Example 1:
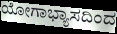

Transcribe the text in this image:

ಯೋಗಾಭ್ಯಾಸದಿಂದ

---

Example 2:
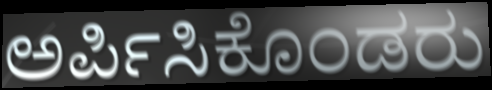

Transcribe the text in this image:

ಅರ್ಪಿಸಿಕೊಂಡರು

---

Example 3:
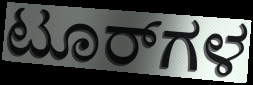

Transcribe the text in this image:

ಟೂರ್‌ಗಳ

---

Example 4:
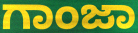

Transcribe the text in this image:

ಗಾಂಜಾ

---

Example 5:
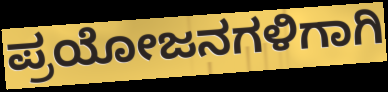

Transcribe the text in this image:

ಪ್ರಯೋಜನಗಳಿಗಾಗಿ